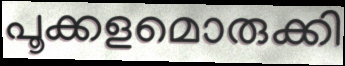
പൂക്കളമൊരുക്കി